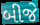
બીજે